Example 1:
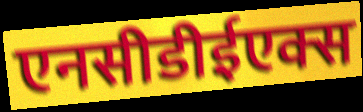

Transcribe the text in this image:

एनसीडीईएक्स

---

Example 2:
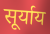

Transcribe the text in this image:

सूर्याय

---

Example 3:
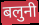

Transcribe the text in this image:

बलुनी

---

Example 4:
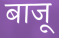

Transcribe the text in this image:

बाजू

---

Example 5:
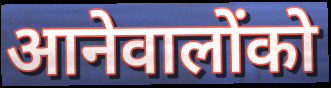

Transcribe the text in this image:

आनेवालोंको